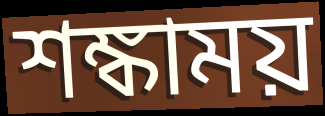
শঙ্কাময়